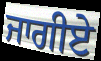
ਜਾਗੀਏ